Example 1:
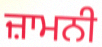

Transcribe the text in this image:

ਜ਼ਾਮਨੀ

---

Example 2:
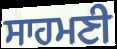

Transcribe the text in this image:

ਸਾਹਮਣੀ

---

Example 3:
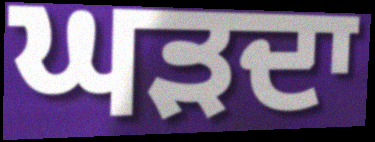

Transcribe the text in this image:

ਘੜਦਾ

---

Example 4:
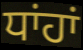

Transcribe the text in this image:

ਧਾਂਹਾਂ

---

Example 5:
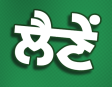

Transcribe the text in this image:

ਲੈਣੇਂ